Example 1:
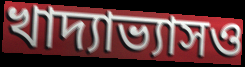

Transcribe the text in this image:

খাদ্যাভ্যাসও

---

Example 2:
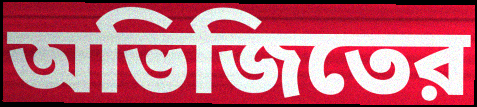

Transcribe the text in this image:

অভিজিতের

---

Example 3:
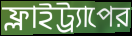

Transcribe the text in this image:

ফ্লাইট্র্যাপের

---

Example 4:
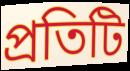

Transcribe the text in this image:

প্রতিটি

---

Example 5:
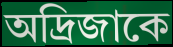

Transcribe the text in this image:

অদ্রিজাকে